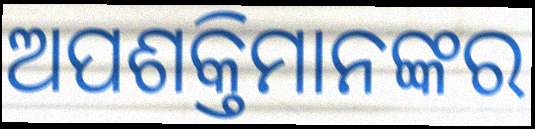
ଅପଶକ୍ତିମାନଙ୍କର